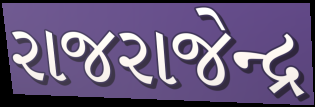
રાજરાજેન્દ્ર